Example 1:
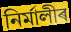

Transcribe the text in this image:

নিৰ্মালীৰ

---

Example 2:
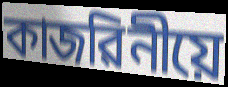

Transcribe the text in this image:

কাজৱিনীয়ে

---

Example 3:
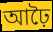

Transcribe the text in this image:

আঢ়ৈ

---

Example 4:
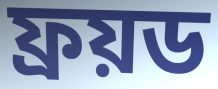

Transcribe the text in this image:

ফ্ৰয়ড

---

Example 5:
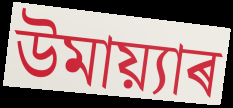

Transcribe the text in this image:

উমায়্যাৰ